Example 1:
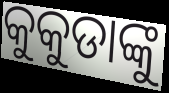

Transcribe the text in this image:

କୁକୁଡାଙ୍କୁ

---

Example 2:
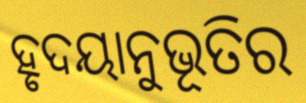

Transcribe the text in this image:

ହୃଦୟାନୁଭୂତିର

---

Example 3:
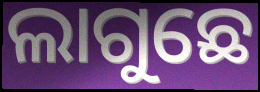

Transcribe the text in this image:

ଲାଗୁଛେ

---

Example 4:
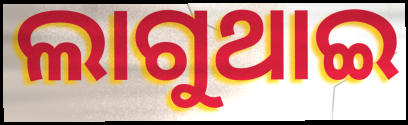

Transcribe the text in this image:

ଲାଗୁଥାଇ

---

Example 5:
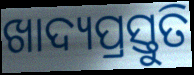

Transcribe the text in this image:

ଖାଦ୍ୟପ୍ରସ୍ତୁତି